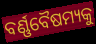
ବର୍ଣ୍ଣବୈଷମ୍ୟକୁ